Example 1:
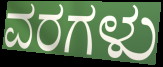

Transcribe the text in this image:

ವರಗಳು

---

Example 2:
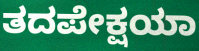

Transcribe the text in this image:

ತದಪೇಕ್ಷಯಾ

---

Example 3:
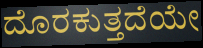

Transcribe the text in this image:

ದೊರಕುತ್ತದೆಯೇ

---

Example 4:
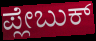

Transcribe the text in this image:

ಪ್ಲೇಬುಕ್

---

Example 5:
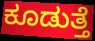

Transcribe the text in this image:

ಕೂಡುತ್ತೆ